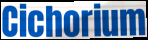
Cichorium